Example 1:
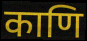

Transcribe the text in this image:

काणि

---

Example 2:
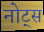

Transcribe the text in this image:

नोट्‌स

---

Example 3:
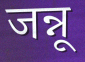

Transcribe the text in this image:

जन्नू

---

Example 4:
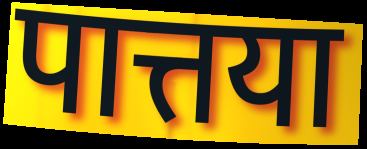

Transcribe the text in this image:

पात्तया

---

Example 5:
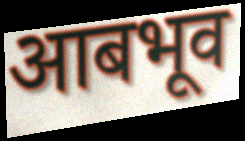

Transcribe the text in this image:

आबभूव